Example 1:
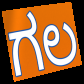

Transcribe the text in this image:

ಗಲ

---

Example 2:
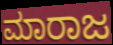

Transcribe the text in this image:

ಮಾರಾಜ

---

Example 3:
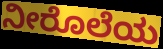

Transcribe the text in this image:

ನೀರೊಲೆಯ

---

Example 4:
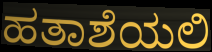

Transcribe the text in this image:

ಹತಾಶೆಯಲಿ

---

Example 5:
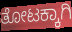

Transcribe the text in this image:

ತೋಟಕ್ಕಾಗಿ